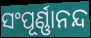
ସଂପୂର୍ଣ୍ଣାନନ୍ଦ